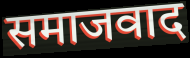
समाजवाद